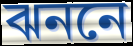
ঝননে